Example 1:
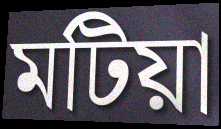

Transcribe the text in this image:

মটিয়া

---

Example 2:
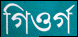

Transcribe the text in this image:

গিওৰ্গ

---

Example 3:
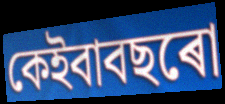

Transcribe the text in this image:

কেইবাবছৰো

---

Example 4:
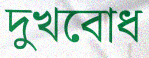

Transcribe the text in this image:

দুখবোধ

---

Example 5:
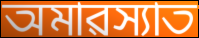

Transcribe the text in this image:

অমাৱস্যাত